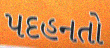
પદહનતો